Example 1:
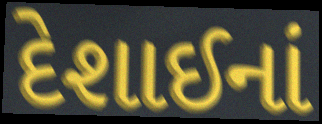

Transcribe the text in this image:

દેશાઈનાં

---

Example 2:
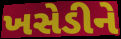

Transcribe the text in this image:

ખસેડીને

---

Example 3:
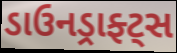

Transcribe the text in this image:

ડાઉનડ્રાફ્ટ્સ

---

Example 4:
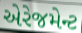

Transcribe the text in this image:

એરેજમેન્ટ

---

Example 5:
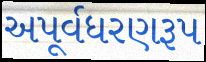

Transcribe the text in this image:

અપૂર્વધરણરૂપ